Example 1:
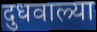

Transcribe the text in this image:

दुधवाल्या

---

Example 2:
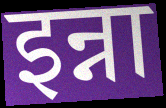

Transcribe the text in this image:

इन्ना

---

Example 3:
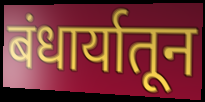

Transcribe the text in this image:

बंधार्यातून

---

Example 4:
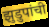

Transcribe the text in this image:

झुडुपांची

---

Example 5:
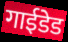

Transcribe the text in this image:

गाईडेड